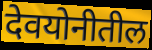
देवयोनीतील